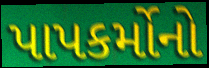
પાપકર્મોનો